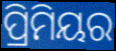
ପ୍ରିମିୟର